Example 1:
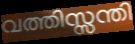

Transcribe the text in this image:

വത്തിസ്സന്തി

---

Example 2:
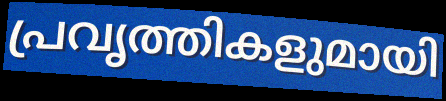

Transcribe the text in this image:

പ്രവൃത്തികളുമായി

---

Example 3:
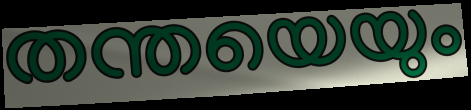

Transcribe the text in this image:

തന്തയെയും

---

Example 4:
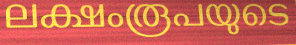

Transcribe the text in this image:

ലക്ഷംരൂപയുടെ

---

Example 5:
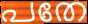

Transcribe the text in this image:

പതേ